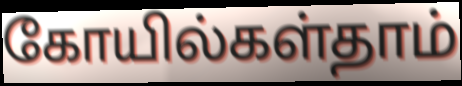
கோயில்கள்தாம்